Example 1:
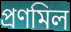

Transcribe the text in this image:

প্রণমিল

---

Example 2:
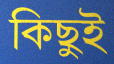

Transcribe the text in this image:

কিছুই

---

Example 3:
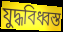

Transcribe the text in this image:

যুদ্ধবিধ্বস্ত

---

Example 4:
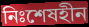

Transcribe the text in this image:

নিঃশেষহীন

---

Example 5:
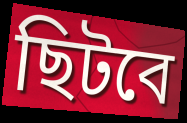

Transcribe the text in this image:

ছিটবে